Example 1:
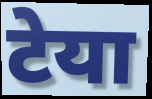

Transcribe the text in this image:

टेया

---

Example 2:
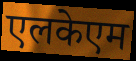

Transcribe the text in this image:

एलकेएम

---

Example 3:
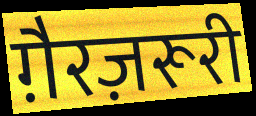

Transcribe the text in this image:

ग़ैरज़रूरी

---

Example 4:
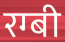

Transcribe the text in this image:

रग्बी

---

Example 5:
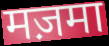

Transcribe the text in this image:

मज़मा